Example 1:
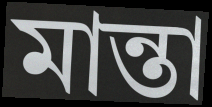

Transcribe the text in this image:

মান্তা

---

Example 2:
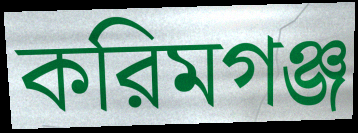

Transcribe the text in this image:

করিমগঞ্জ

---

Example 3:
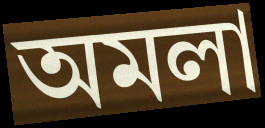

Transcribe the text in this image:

অমলা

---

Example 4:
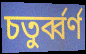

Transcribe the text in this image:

চতুর্ব্বর্ণ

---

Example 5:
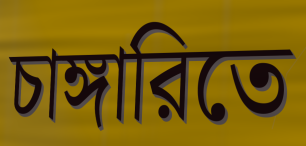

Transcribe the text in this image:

চাঙ্গারিতে